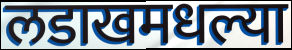
लडाखमधल्या